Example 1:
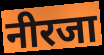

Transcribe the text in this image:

नीरजा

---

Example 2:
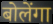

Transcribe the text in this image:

बोलेंगा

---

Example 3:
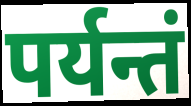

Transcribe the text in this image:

पर्यन्तं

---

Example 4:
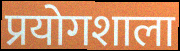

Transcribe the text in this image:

प्रयोगशाला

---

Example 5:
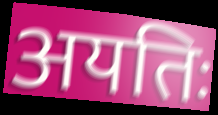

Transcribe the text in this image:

अयतिः